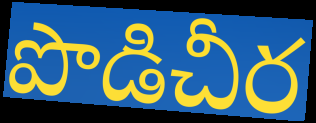
పొడిచీర